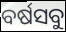
ବର୍ଷସବୁ